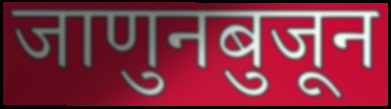
जाणुनबुजून